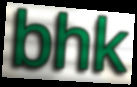
bhk